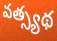
వత్స్యథ